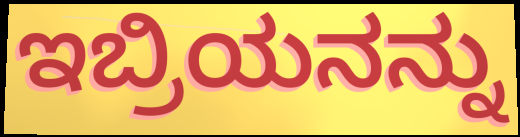
ಇಬ್ರಿಯನನ್ನು